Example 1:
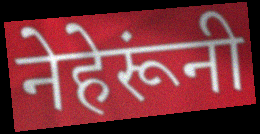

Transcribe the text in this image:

नेहेरूंनी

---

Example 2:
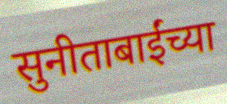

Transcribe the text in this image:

सुनीताबाईंच्या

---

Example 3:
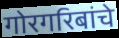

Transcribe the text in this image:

गोरगरिबांचे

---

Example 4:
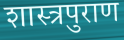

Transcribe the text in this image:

शास्त्रपुराण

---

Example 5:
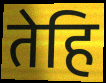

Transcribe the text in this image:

तेहि